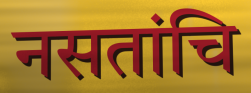
नसतांचि